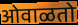
ओवाळतो